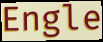
Engle